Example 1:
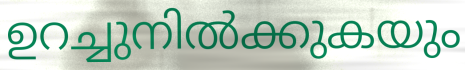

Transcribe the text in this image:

ഉറച്ചുനിൽക്കുകയും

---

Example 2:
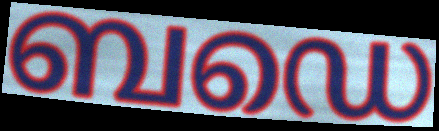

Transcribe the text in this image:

ബഡെ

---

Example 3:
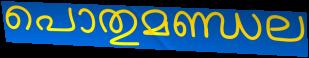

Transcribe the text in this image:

പൊതുമണ്ഡല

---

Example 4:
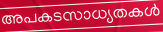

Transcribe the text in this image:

അപകടസാധ്യതകൾ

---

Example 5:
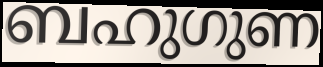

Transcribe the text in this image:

ബഹുഗുണ